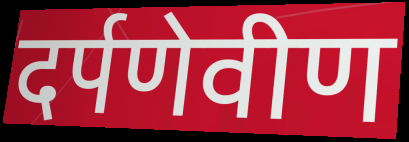
दर्पणेवीण